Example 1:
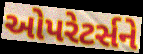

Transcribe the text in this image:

ઓપરેટર્સને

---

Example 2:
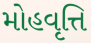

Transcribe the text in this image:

મોહવૃત્તિ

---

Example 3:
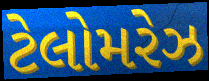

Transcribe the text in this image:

ટેલોમરેઝ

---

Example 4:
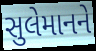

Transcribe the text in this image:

સુલેમાનને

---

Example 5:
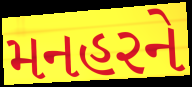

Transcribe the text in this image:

મનહરને